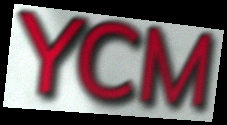
YCM